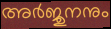
അർജുനനും